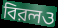
বিরলও